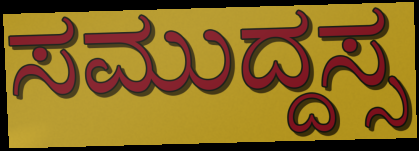
ಸಮುದ್ದಸ್ಸ